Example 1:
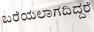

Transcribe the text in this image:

ಬರೆಯಲಾಗದಿದ್ದರೆ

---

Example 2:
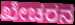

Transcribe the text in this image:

ಖೇಚರನ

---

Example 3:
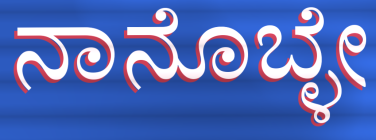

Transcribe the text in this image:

ನಾನೊಬ್ಳೇ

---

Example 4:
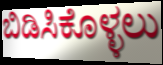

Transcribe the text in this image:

ಬಿಡಿಸಿಕೊಳ್ಳಲು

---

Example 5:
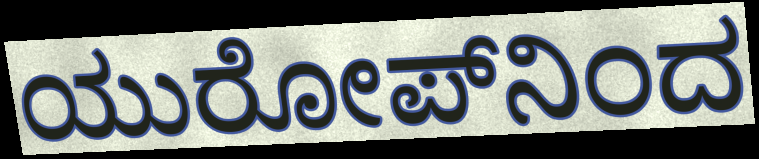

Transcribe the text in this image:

ಯುರೋಪ್‌ನಿಂದ